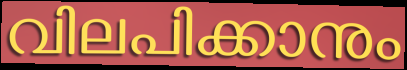
വിലപിക്കാനും